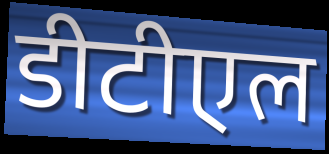
डीटीएल